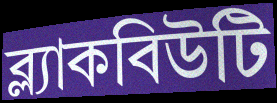
ব্ল্যাকবিউটি